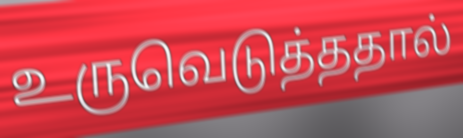
உருவெடுத்ததால்